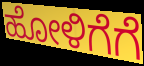
ಹೋಳಿಗೆಗೆ